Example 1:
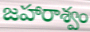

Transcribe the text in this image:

జహారాశ్వం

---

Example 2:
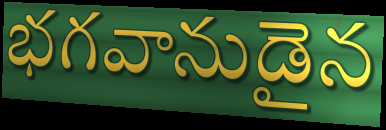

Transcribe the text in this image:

భగవానుడైన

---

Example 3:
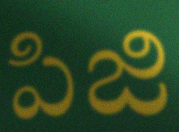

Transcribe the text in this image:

పిజి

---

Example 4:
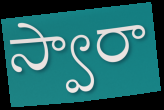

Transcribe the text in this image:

స్వారా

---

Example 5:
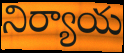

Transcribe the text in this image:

నిర్యాయ